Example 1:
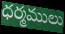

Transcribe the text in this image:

ధర్మములు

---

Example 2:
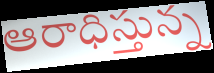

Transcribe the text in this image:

ఆరాధిస్తున్న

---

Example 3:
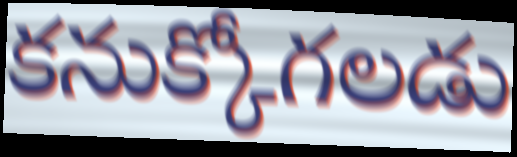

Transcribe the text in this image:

కనుక్కోగలడు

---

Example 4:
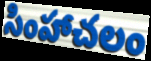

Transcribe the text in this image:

సింహాచలం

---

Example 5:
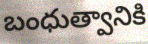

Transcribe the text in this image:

బంధుత్వానికి